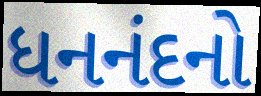
ધનનંદનો